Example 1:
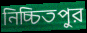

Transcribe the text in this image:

নিচ্চিতপুর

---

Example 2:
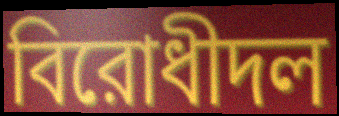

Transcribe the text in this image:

বিরোধীদল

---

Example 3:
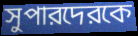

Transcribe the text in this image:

সুপারদেরকে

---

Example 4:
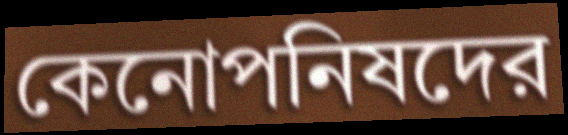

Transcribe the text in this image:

কেনোপনিষদের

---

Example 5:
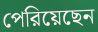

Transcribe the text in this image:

পেরিয়েছেন